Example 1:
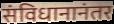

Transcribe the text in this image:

संविधानानंतर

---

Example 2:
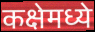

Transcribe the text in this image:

कक्षेमध्ये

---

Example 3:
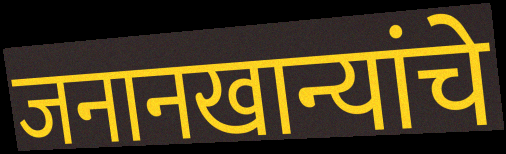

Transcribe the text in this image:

जनानखान्यांचे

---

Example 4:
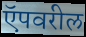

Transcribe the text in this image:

ऍपवरील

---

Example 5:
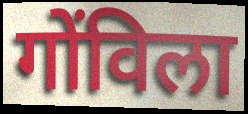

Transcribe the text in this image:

गोंविला